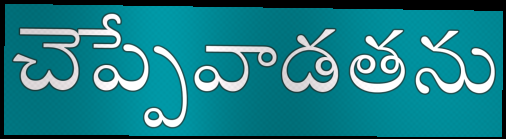
చెప్పేవాడతను